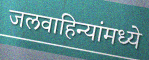
जलवाहिन्यांमध्ये